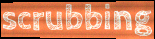
scrubbing